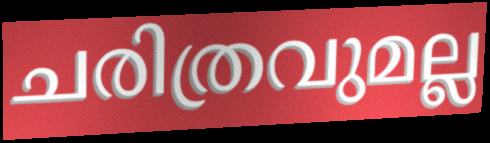
ചരിത്രവുമല്ല